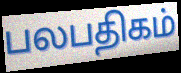
பலபதிகம்